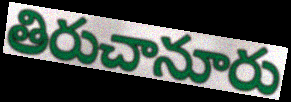
తిరుచానూరు